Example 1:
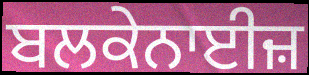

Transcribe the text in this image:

ਬਲਕੇਨਾਈਜ਼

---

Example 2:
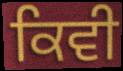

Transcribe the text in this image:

ਕਿਵੀ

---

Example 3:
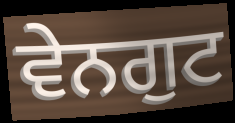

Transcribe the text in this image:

ਵੇਨਗੁਟ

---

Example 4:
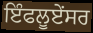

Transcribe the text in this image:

ਇੰਫਲੂਏਂਸਰ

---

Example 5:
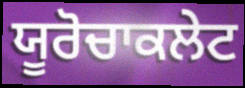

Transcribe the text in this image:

ਯੂਰੋਚਾਕਲੇਟ